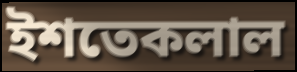
ইশতেকলাল